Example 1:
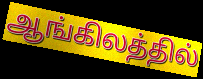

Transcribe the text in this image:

ஆங்கிலத்தில்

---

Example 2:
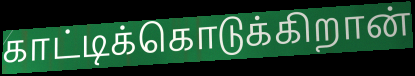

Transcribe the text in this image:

காட்டிக்கொடுக்கிறான்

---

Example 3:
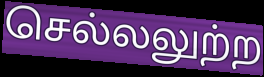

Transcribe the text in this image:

செல்லலுற்ற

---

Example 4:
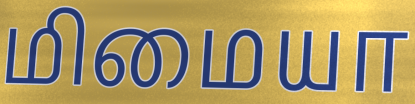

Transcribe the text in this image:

மிமையா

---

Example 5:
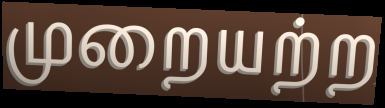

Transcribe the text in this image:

முறையற்ற